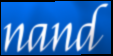
nand